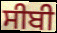
ਸੀਬੀ